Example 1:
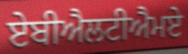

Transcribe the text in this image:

ਏਬੀਐਲਟੀਐਮਏ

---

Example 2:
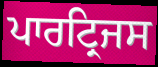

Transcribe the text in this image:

ਪਾਰਟ੍ਰਿਜਸ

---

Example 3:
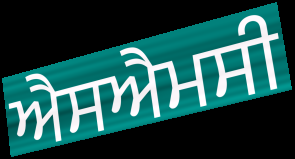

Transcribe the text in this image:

ਐਸਐਮਸੀ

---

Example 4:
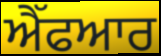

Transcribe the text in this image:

ਐੱਫਆਰ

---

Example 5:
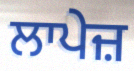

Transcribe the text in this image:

ਲਾਪੇਜ਼